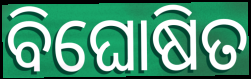
ବିଘୋଷିତ